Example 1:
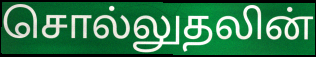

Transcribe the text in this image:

சொல்லுதலின்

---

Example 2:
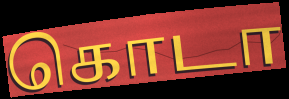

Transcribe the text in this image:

கொடா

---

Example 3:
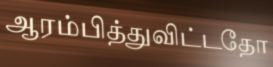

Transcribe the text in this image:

ஆரம்பித்துவிட்டதோ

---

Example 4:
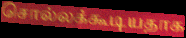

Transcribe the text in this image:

சொல்லக்கூடியதாக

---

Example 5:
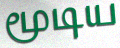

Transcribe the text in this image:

மூடிய